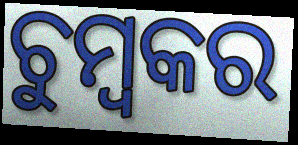
ଚୁମ୍ବକର